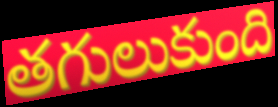
తగులుకుంది